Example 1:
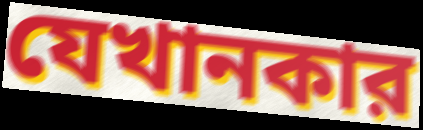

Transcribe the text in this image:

যেখানকার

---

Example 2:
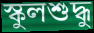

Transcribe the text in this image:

স্কুলশুদ্ধু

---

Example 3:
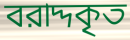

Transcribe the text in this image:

বরাদ্দকৃত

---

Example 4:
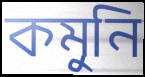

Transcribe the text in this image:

কমুনি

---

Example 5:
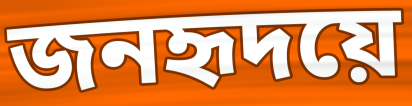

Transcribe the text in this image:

জনহৃদয়ে